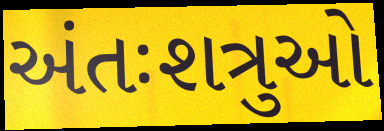
અંતઃશત્રુઓ